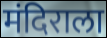
मंदिराला